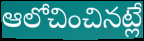
ఆలోచించినట్లే